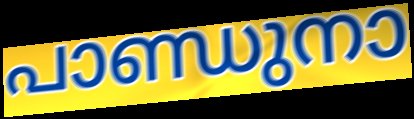
പാണ്ഡുനാ